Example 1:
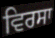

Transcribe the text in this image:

ਵਿਰਸਾ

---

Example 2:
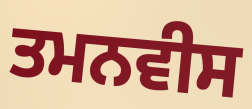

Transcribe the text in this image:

ਤਮਨਵੀਸ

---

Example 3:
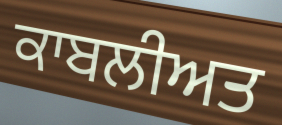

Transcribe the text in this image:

ਕਾਬਲੀਅਤ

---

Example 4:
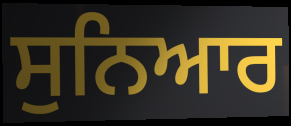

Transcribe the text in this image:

ਸੁਨਿਆਰ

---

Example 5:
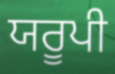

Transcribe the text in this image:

ਯਰੂਪੀ